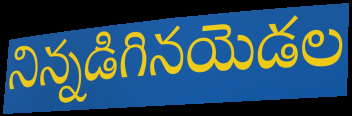
నిన్నడిగినయెడల